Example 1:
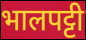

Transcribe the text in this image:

भालपट्टी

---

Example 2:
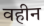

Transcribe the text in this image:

वहीन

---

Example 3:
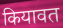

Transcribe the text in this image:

कियावत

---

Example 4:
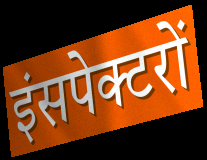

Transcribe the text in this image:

इंसपेक्टरों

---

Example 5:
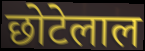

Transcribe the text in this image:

छोटेलाल